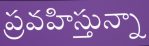
ప్రవహిస్తున్నా